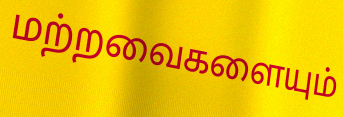
மற்றவைகளையும்